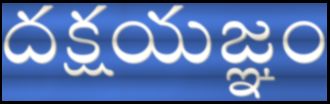
దక్షయజ్ఞం